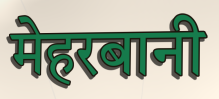
मेहरबानी